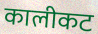
कालीकट